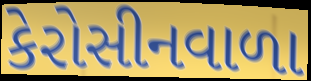
કેરોસીનવાળા